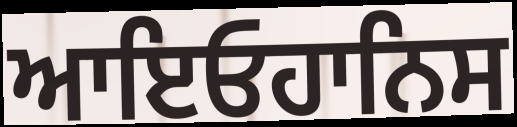
ਆਇਓਹਾਨਿਸ